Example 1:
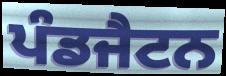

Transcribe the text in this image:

ਪੰਡਜੈਟਨ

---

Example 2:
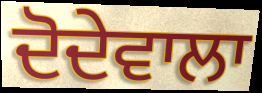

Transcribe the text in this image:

ਦੋਦੇਵਾਲਾ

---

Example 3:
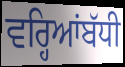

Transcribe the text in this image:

ਵਰ੍ਹਿਆਂਬੱਧੀ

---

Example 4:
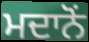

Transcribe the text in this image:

ਮਦਾਨੋਂ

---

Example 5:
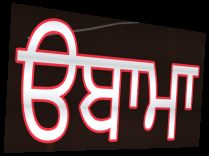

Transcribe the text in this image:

ੳਬਾਮਾ